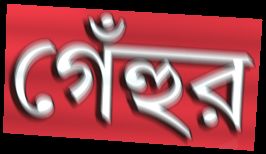
গেঁহুর